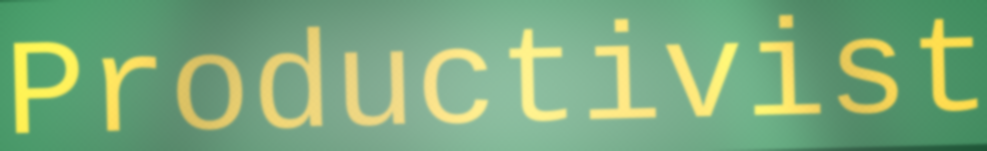
Productivist